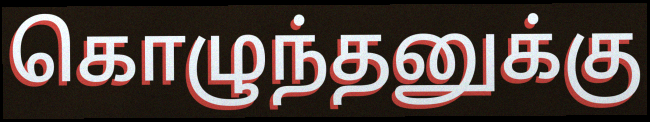
கொழுந்தனுக்கு